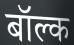
बॉल्क